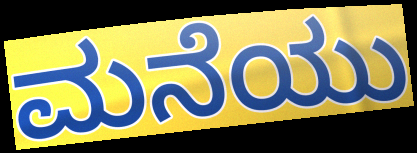
ಮನೆಯು